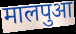
मालपुआ